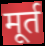
मूर्त